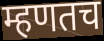
म्हणतच